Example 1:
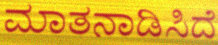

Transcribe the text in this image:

ಮಾತನಾಡಿಸಿದೆ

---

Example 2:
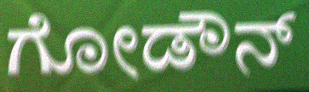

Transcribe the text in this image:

ಗೋಡೌನ್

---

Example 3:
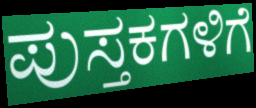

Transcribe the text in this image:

ಪುಸ್ತಕಗಳಿಗೆ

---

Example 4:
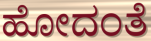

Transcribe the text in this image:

ಹೋದಂತೆ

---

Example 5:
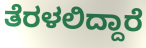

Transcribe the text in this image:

ತೆರಳಲಿದ್ದಾರೆ